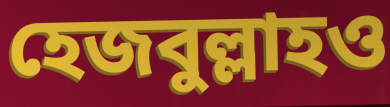
হেজবুল্লাহও